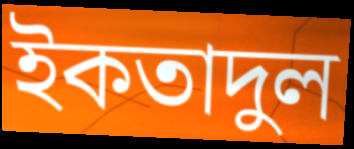
ইকতাদুল